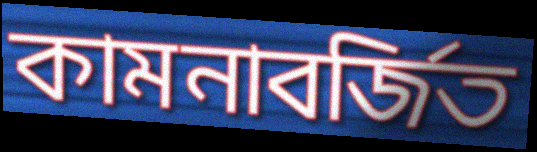
কামনাবর্জিত